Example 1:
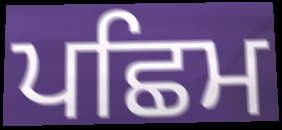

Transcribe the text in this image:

ਪਛਿਮ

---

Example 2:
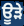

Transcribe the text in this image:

ਊੜੇ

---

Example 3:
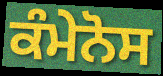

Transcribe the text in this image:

ਕੰਮੇਨੋਸ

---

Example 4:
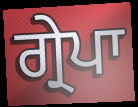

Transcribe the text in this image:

ਗ੍ਰੇਪਾ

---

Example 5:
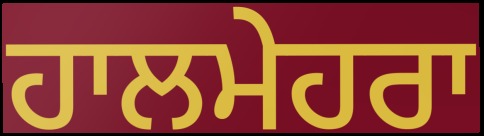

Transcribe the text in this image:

ਹਾਲਮੇਹਰਾ